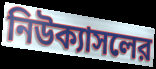
নিউক্যাসলের